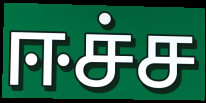
ஈச்ச